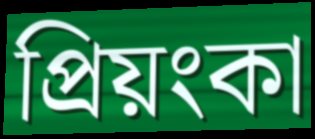
প্ৰিয়ংকা